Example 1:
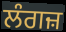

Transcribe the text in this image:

ਲੰਗਜ਼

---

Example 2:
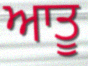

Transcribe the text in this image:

ਆਤੂ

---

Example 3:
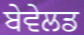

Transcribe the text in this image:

ਬੇਵੇਲਡ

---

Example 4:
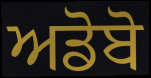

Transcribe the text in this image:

ਅਡੋਬੋ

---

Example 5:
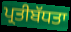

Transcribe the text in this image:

ਪ੍ਰਤੀਬੱਧਤਾ